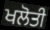
ਖਲੋਤੀ